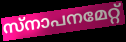
സ്നാപനമേറ്റ്